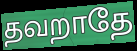
தவறாதே